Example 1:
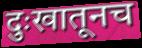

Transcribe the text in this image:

दुःखातूनच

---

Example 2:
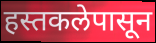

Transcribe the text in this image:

हस्तकलेपासून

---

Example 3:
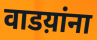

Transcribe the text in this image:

वाडय़ांना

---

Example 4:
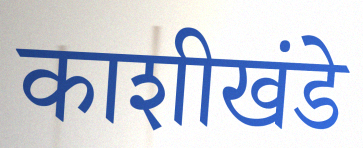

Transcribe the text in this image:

काशीखंडे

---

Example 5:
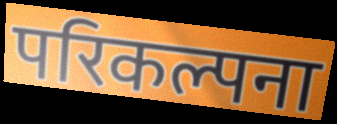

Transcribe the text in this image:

परिकल्पना